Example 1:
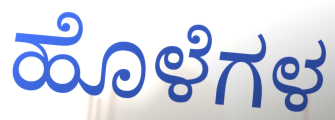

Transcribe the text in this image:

ಹೊಳೆಗಳ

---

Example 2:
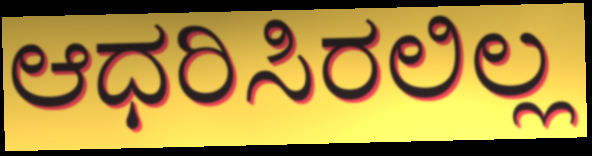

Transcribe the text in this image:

ಆಧರಿಸಿರಲಿಲ್ಲ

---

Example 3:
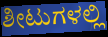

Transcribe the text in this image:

ಶೀಟುಗಳಲ್ಲಿ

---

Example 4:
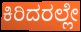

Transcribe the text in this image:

ಕಿರಿದರಲ್ಲೇ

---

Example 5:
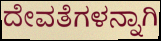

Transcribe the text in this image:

ದೇವತೆಗಳನ್ನಾಗಿ